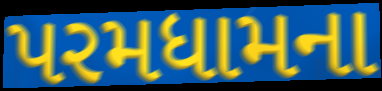
પરમધામના